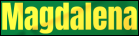
Magdalena